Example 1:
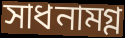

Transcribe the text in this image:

সাধনামগ্ন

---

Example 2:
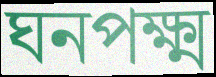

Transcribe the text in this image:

ঘনপক্ষ্ম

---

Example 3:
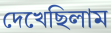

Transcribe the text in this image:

দেখেছিলাম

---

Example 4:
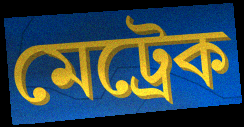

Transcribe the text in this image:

মেট্রেক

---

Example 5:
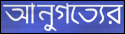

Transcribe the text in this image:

আনুগত্যের